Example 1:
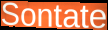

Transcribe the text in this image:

Sontate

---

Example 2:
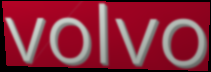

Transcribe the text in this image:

volvo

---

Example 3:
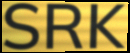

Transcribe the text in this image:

SRK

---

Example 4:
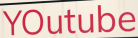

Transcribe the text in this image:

YOutube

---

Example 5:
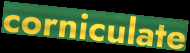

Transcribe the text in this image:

corniculate